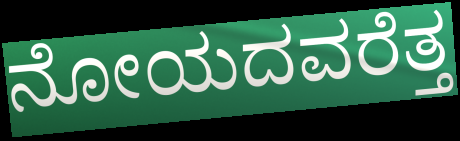
ನೋಯದವರೆತ್ತ